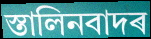
স্তালিনবাদৰ